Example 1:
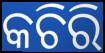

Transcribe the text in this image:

କଚିରି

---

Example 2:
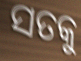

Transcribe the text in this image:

ସତକୁ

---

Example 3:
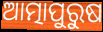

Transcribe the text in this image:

ଆତ୍ମାପୁରୁଷ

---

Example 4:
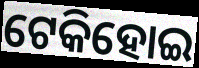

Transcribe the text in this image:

ଟେକିହୋଇ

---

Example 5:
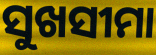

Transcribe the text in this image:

ସୁଖସୀମା